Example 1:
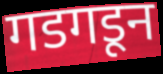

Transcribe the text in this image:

गडगडून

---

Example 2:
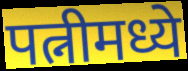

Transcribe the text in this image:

पत्नीमध्ये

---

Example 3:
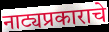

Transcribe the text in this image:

नाट्यप्रकाराचे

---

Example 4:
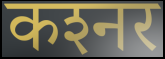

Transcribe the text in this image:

कश्‍नर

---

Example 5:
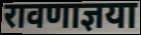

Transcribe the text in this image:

रावणाज्ञया